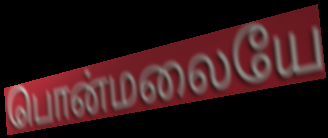
பொன்மலையே